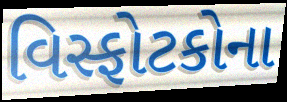
વિસ્ફોટકોના